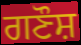
ਗਣੌਸ਼